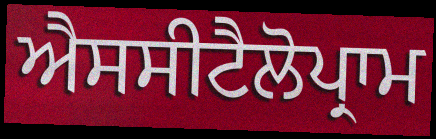
ਐਸਸੀਟੈਲੋਪ੍ਰਾਮ